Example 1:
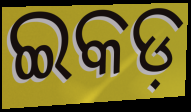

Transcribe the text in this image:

ଇକଡ଼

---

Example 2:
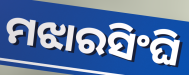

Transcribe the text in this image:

ମଝାରସିଂଘି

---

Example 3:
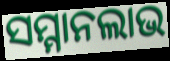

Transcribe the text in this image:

ସମ୍ମାନଲାଭ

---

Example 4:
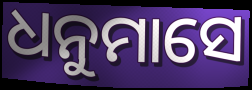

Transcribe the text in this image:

ଧନୁମାସେ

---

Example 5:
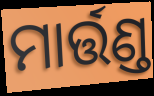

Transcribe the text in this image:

ମାର୍ତ୍ତଣ୍ଡ